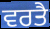
ਵਰਤੈ